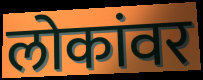
लोकांवर